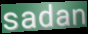
sadan